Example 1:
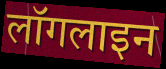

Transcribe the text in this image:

लॉगलाइन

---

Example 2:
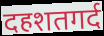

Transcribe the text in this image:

दहशतगर्द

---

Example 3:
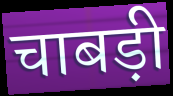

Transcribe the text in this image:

चाबड़ी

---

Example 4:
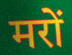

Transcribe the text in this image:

मरों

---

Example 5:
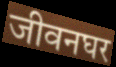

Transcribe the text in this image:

जीवनघर